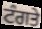
ਟੰਗਤੇ